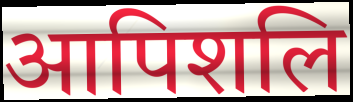
आपिशलि